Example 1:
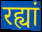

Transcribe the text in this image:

रह्यां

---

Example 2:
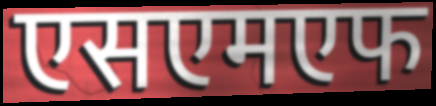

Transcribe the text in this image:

एसएमएफ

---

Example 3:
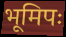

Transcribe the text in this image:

भूमिपः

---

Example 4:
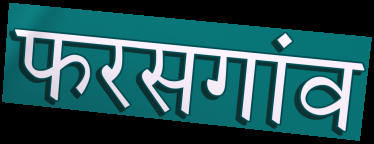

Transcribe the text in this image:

फरसगांव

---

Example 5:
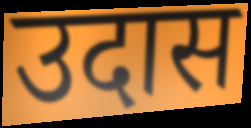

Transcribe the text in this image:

उदास